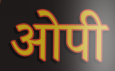
ओपी